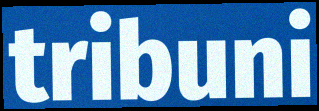
tribuni